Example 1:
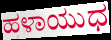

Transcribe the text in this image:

ಹಳಾಯುಧ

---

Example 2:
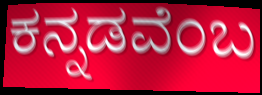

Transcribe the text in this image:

ಕನ್ನಡವೆಂಬ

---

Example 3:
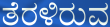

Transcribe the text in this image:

ತೆರಳಿರುವ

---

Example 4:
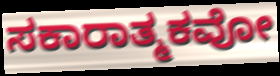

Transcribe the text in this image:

ಸಕಾರಾತ್ಮಕವೋ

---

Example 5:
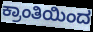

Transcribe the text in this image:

ಕ್ರಾಂತಿಯಿಂದ